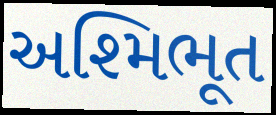
અશ્મિભૂત